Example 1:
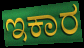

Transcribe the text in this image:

ಇಕಾರ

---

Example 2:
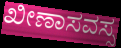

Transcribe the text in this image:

ಖೀಣಾಸವಸ್ಸ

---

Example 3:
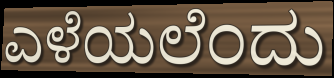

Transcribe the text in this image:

ಎಳೆಯಲೆಂದು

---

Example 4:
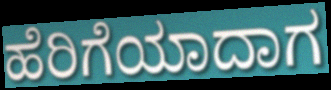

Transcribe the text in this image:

ಹೆರಿಗೆಯಾದಾಗ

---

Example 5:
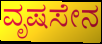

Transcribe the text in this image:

ವೃಷಸೇನ